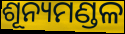
ଶୂନ୍ୟମଣ୍ଡଳ